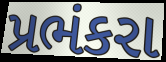
પ્રભંકરા